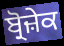
ਬ੍ਰੋਜ਼ੇਕ